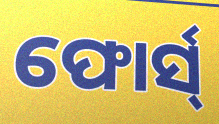
ଫୋର୍ସ୍